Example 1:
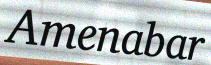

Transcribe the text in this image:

Amenabar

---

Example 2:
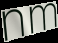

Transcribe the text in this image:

nm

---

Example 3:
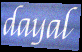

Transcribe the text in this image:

dayal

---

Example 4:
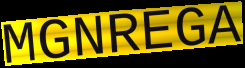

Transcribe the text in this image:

MGNREGA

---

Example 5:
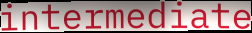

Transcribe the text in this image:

intermediate